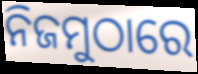
ନିଜମୁଠାରେ